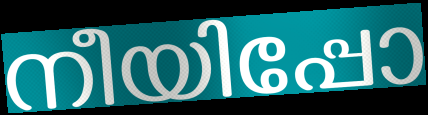
നീയിപ്പോ